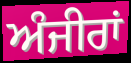
ਅੰਜੀਰਾਂ